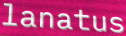
lanatus